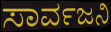
ಸಾರ್ವಜನಿ